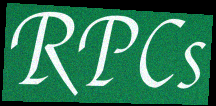
RPCs